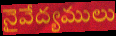
నైవేద్యములు